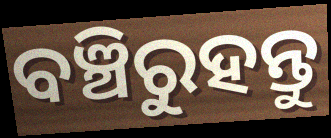
ବଞ୍ଚିରୁହନ୍ତୁ